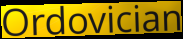
Ordovician